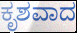
ಕೃಶವಾದ